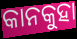
କାନକୁହା